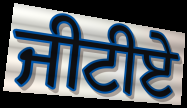
ਜੀਟੀਏ